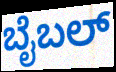
ಬೈಬಲ್